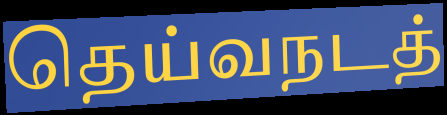
தெய்வநடத்